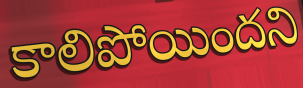
కాలిపోయిందని